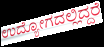
ಉದ್ಯೋಗದಲ್ಲಿದ್ದರೆ